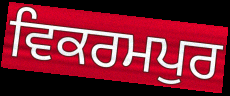
ਵਿਕਰਮਪੁਰ